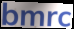
bmrc